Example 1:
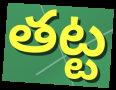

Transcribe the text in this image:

తట్ట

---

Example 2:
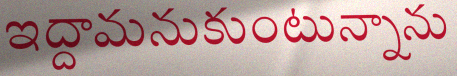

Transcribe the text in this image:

ఇద్దామనుకుంటున్నాను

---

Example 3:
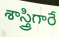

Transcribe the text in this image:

శాస్త్రిగారే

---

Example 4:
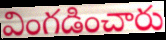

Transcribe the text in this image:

వింగడించారు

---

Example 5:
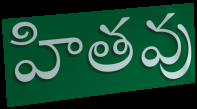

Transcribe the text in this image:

హితవు